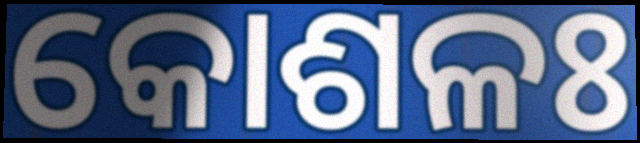
କୋଶଳଃ